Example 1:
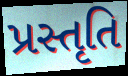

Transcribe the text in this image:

પ્રસ્તૃતિ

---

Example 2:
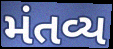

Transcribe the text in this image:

મંતવ્ય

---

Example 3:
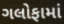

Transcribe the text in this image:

ગલોફામાં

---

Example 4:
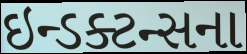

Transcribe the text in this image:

ઇન્ડક્ટન્સના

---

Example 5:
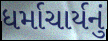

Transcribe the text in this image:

ધર્માચાર્યનું